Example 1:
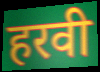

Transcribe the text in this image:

हरवी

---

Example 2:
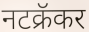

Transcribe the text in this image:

नटक्रॅकर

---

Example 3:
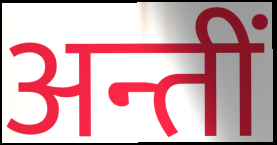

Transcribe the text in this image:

अन्तीं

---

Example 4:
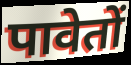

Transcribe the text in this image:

पावेतों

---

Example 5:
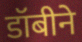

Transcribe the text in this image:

डॉबीने